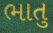
ભાતુ